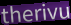
therivu